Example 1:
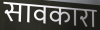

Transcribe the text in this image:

सावकारा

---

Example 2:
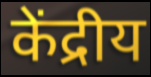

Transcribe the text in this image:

केंद्रीय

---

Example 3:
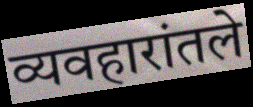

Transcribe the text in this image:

व्यवहारांतले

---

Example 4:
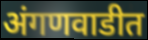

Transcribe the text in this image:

अंगणवाडीत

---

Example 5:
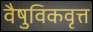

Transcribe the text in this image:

वैषुविकवृत्त